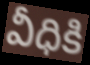
వీధికి